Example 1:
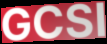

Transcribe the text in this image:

GCSI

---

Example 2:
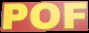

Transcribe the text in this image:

POF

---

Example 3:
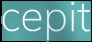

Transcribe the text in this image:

cepit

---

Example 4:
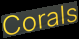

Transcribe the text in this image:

Corals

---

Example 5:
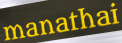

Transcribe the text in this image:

manathai